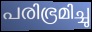
പരിഭ്രമിച്ചു